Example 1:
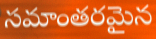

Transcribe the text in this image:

సమాంతరమైన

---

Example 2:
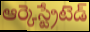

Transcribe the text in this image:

ఆర్కెస్ట్రేటెడ్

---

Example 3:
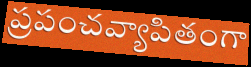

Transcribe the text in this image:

ప్రపంచవ్యాపితంగా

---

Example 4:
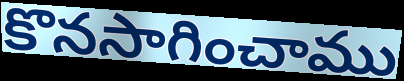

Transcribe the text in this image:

కొనసాగించాము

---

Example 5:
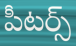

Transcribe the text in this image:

పీటర్స్